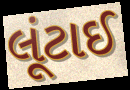
લૂંટાઈ